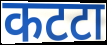
कटटा